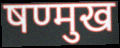
षण्मुख